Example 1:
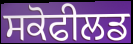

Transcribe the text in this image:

ਸਕੋਫੀਲਡ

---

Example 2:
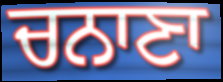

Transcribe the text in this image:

ਚਨਾਣਾ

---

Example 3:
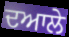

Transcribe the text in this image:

ਦਆਲੇ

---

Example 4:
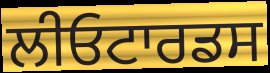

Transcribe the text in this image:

ਲੀਓਟਾਰਡਸ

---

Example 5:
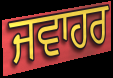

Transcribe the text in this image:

ਜਵਾਹਰ